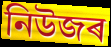
নিউজৰ